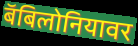
बॅबिलोनियावर